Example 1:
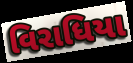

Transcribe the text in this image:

વિરાધિયા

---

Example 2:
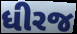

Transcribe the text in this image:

ધીરજ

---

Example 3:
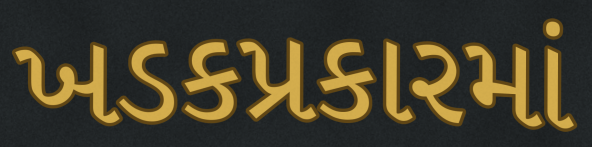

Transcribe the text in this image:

ખડકપ્રકારમાં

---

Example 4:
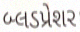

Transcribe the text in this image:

બ્લડપ્રેશર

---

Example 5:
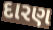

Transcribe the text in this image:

દારણ